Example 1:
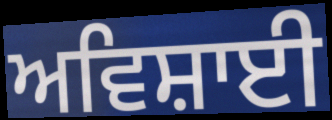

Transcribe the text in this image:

ਅਵਿਸ਼ਾਈ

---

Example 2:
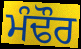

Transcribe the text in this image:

ਮੰਢੌਰ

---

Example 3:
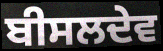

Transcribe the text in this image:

ਬੀਸਲਦੇਵ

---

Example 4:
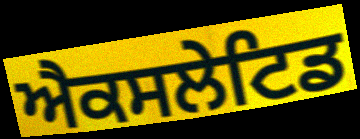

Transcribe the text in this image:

ਐਕਸਲੇਟਿਡ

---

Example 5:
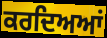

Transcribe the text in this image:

ਕਰਦਿਅਆਂ